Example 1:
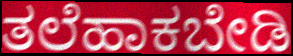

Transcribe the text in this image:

ತಲೆಹಾಕಬೇಡಿ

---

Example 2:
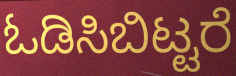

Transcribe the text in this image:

ಓಡಿಸಿಬಿಟ್ಟರೆ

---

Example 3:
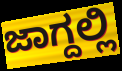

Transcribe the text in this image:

ಜಾಗ್ದಲ್ಲಿ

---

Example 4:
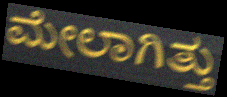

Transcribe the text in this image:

ಮೇಲಾಗಿತ್ತು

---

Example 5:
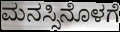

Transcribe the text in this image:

ಮನಸ್ಸಿನೊಳಗೆ